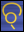
ଚ୍